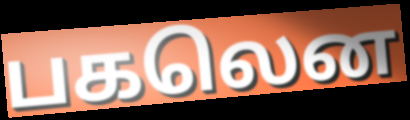
பகலென